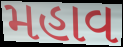
મહાવ